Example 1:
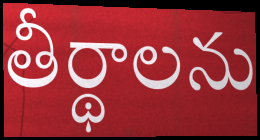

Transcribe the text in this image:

తీర్థాలను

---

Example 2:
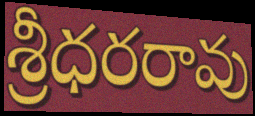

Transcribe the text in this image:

శ్రీధరరావు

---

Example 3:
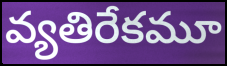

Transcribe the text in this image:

వ్యతిరేకమూ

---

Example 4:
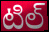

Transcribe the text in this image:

టిల్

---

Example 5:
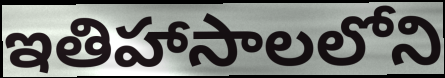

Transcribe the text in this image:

ఇతిహాసాలలోని